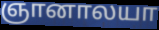
ஞானாலயா